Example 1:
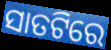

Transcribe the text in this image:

ସାତଟିରେ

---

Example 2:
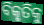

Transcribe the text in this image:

ବିକୃତିକୁ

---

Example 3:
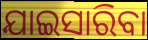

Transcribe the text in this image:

ଯାଇସାରିବା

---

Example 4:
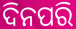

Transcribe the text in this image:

ଦିନପରି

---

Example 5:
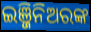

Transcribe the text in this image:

ଇଞ୍ଜିନିଅରଙ୍କ